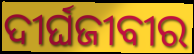
ଦୀର୍ଘଜୀବୀର